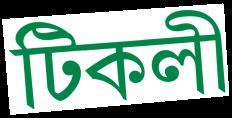
টিকলী